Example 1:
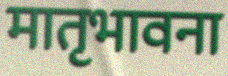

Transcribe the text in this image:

मातृभावना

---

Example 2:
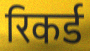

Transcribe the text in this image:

रिकर्ड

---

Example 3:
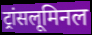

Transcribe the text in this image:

ट्रांसलूमिनल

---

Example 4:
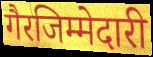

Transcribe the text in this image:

गैरजिम्मेदारी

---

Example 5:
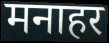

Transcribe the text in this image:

मनाहर